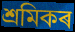
শ্ৰমিকৰ